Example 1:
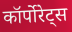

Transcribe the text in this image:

कॉर्पोरेट्स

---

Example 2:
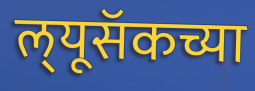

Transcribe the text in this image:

ल्यूसॅकच्या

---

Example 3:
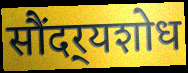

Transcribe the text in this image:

सौंदर्यशोध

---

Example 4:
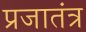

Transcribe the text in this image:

प्रजातंत्र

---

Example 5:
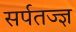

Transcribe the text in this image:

सर्पतज्ज्ञ